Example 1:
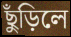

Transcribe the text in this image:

ছুঁড়িলে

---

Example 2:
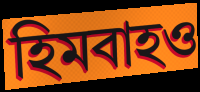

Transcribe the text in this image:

হিমবাহও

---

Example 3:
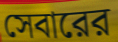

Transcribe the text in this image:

সেবারের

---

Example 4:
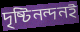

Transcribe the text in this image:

দৃষ্টিনন্দনই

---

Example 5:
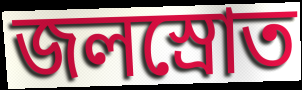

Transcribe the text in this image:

জলস্রোত